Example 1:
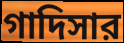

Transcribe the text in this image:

গাদিসার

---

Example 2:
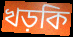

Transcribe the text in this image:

খড়কি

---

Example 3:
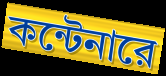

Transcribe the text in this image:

কন্টেনারে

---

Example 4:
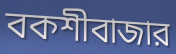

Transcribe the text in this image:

বকশীবাজার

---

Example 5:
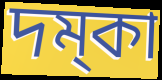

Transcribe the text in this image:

দম্‌কা